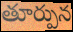
తూర్పున